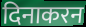
दिनाकरन